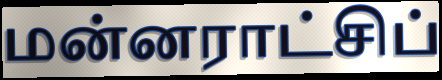
மன்னராட்சிப்